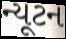
ન્યૂટન